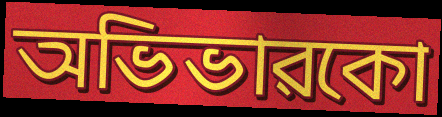
অভিভাৱকো